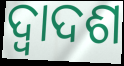
ଦ୍ଵାଦଶ